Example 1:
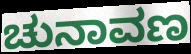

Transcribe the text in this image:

ಚುನಾವಣ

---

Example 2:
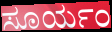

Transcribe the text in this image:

ಸೂರ್ಯಂ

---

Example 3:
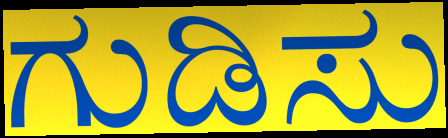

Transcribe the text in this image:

ಗುಡಿಸು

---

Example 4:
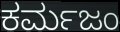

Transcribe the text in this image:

ಕರ್ಮಜಂ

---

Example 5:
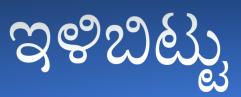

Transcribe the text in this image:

ಇಳಿಬಿಟ್ಟು